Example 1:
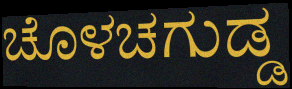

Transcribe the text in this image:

ಚೊಳಚಗುಡ್ಡ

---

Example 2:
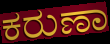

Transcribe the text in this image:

ಕರುಣಾ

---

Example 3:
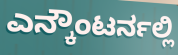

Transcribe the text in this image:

ಎನ್ಕೌಂಟರ್ನಲ್ಲಿ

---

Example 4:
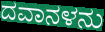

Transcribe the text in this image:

ದವಾನಳನು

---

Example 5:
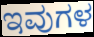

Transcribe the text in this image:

ಇವುಗಳ